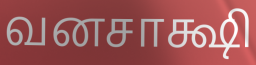
வனசாக்ஷி